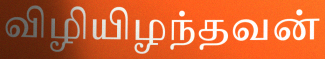
விழியிழந்தவன்